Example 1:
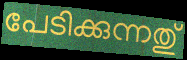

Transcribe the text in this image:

പേടിക്കുന്നതു്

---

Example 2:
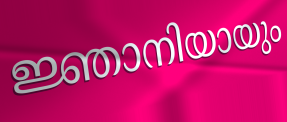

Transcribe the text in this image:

ജ്ഞാനിയായും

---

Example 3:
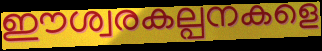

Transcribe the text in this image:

ഈശ്വരകല്പനകളെ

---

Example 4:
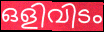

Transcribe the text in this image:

ഒളിവിടം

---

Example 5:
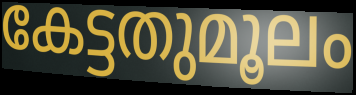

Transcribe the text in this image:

കേട്ടതുമൂലം